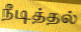
நீடித்தல்